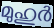
മുഹുർ